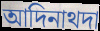
আদিনাথদা